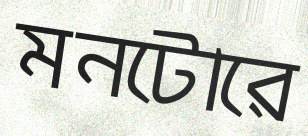
মনটোৱে